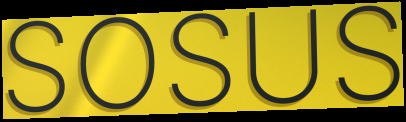
SOSUS